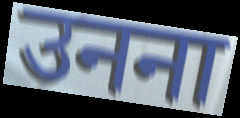
उनना